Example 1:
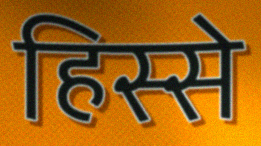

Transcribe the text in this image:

हिस्से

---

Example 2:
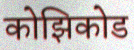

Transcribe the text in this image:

कोझिकोड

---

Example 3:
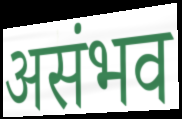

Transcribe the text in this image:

असंभव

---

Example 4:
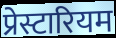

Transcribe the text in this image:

प्रेस्टारियम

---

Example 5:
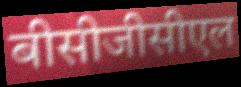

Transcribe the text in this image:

बीसीजीसीएल